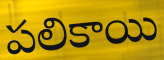
పలికాయి